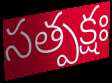
సత్పక్షః